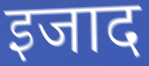
इजाद